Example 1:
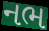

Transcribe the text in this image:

નભ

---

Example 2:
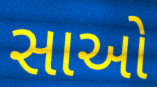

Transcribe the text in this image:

સાઓ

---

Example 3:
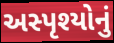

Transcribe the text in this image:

અસ્પૃશ્યોનું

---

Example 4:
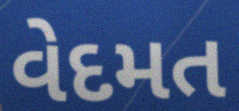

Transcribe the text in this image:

વેદમત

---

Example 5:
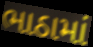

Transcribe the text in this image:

ભાઠામાં